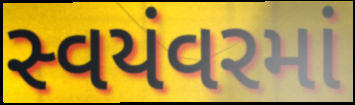
સ્વયંવરમાં